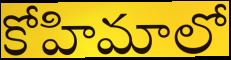
కోహిమాలో